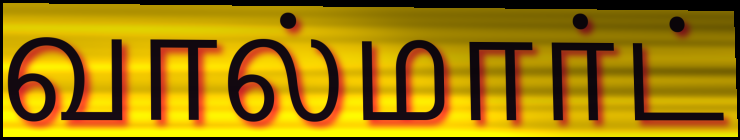
வால்மார்ட்